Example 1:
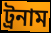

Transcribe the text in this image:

ট্রনাম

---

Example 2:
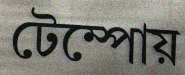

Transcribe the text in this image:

টেম্পোয়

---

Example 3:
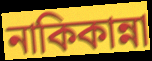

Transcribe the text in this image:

নাকিকান্না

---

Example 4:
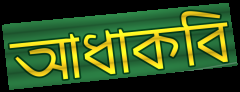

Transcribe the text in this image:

আধাকবি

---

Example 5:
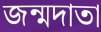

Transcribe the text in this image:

জন্মদাতা